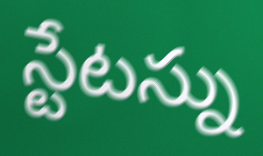
స్టేటస్ను